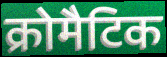
क्रोमैटिक